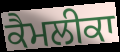
ਕੈਮਲੀਕਾ